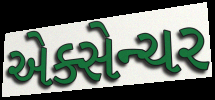
એક્સેન્ચર